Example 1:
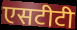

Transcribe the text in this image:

एसटीटी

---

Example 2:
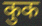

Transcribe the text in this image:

कुक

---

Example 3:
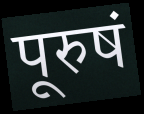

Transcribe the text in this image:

पूरुषं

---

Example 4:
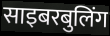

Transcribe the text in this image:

साइबरबुलिंग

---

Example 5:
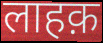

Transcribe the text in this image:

लाहक़